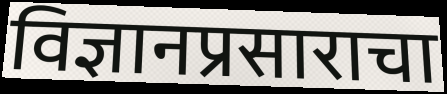
विज्ञानप्रसाराचा